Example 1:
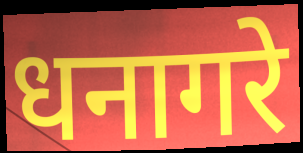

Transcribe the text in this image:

धनागरे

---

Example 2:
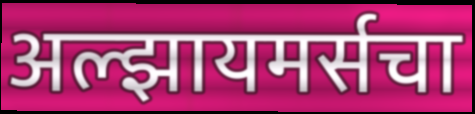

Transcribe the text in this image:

अल्झायमर्सचा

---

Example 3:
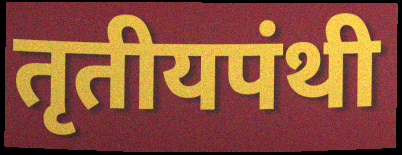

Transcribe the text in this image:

तृतीयपंथी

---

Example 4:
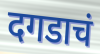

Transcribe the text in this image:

दगडाचं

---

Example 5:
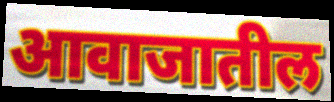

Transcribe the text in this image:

आवाजातील